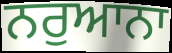
ਨਰੁਆਨਾ